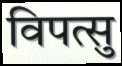
विपत्सु